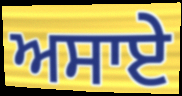
ਅਸਾਏ